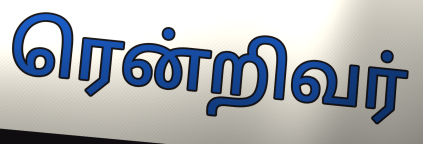
ரென்றிவர்